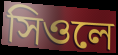
সিওলে